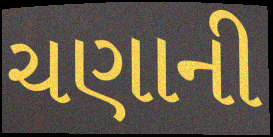
ચણાની